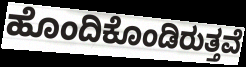
ಹೊಂದಿಕೊಂಡಿರುತ್ತವೆ